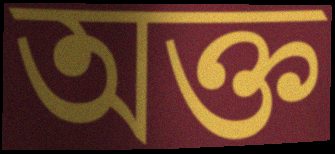
অক্ত